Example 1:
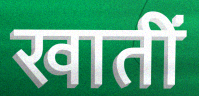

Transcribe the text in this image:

खातीं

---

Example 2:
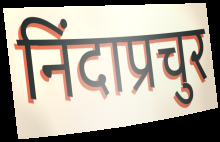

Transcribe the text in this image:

निंदाप्रचुर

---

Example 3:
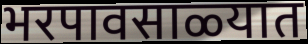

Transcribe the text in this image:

भरपावसाळ्यात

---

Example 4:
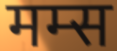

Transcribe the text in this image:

मम्स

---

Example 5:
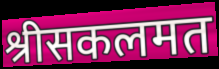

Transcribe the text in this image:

श्रीसकलमत